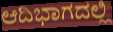
ಆದಿಭಾಗದಲ್ಲಿ